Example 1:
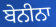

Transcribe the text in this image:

ਬੇਨੀਨਾ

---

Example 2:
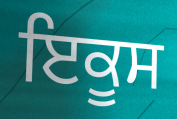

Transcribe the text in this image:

ਇਕੂਸ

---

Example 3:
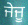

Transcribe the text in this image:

ਜੇਜੂ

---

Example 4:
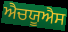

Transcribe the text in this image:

ਐਚਯੂਐਸ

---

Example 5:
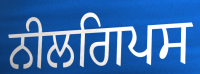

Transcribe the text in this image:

ਨੀਲਗਿਪਸ